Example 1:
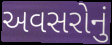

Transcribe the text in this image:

અવસરોનું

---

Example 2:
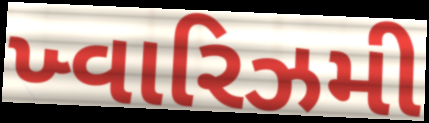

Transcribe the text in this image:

ખ્વારિઝમી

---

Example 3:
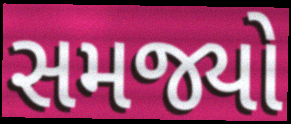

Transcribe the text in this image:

સમજ્યો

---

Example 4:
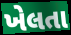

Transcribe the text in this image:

ખેલતા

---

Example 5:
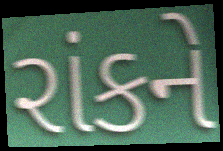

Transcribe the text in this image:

રાંકને